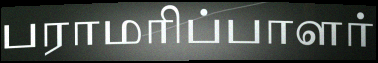
பராமரிப்பாளர்